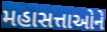
મહાસત્તાઓને